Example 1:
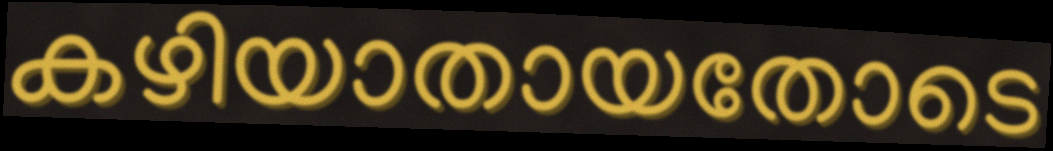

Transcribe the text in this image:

കഴിയാതായതോടെ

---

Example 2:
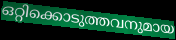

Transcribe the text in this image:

ഒറ്റിക്കൊടുത്തവനുമായ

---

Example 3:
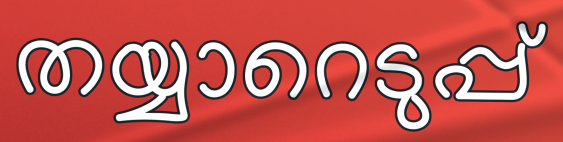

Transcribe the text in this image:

തയ്യാറെടുപ്പ്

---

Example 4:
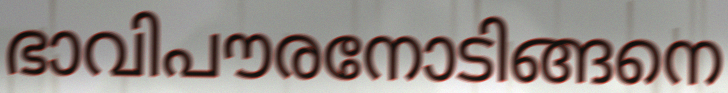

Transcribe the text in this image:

ഭാവിപൗരനോടിങ്ങനെ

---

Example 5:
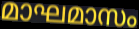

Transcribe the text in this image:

മാഘമാസം